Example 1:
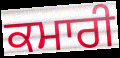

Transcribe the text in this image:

ਕਮਾਰੀ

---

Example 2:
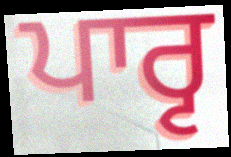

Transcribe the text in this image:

ਪਾਰ੍ਟ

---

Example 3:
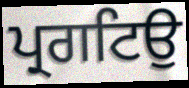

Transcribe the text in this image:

ਪ੍ਰਗਟਿਉ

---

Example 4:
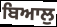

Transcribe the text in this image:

ਬਿਆਲੁ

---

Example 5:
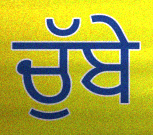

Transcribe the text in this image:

ਚੁੱਬੇ